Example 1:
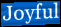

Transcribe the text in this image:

Joyful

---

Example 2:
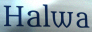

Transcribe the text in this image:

Halwa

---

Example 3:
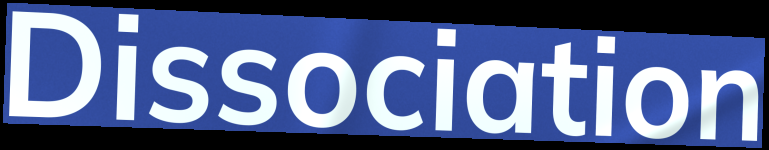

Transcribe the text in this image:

Dissociation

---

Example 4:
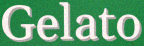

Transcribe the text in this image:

Gelato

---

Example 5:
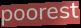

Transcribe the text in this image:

poorest